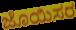
ಜೊಯಿಸರ